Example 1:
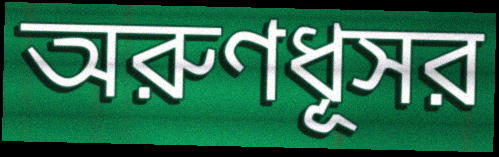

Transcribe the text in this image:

অরুণধূসর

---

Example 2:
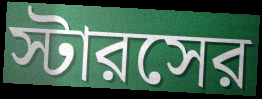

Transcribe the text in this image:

স্টারসের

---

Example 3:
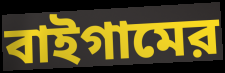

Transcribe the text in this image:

বাইগামের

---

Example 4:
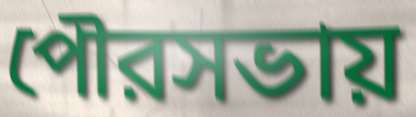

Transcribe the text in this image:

পৌরসভায়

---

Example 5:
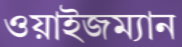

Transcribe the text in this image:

ওয়াইজম্যান